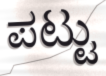
ಪಟ್ಟು